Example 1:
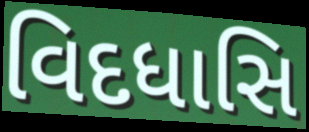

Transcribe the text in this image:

વિદધાસિ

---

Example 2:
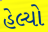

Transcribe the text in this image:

હેલ્યો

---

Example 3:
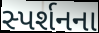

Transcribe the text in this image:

સ્પર્શનના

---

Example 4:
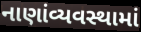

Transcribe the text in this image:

નાણાંવ્યવસ્થામાં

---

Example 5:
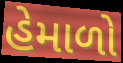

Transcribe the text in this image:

હેમાળો